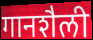
गानशैली